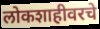
लोकशाहीवरचे